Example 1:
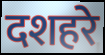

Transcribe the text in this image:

दशहरे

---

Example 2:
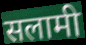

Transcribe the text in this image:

सलामी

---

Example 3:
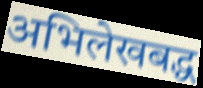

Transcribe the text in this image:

अभिलेखबद्ध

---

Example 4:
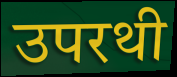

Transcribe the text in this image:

उपरथी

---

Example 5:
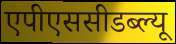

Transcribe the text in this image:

एपीएससीडब्ल्यू